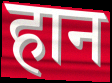
हान